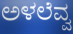
ಅಳಲೆವ್ವ